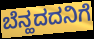
ಬೆನ್ಹದದನಿಗೆ